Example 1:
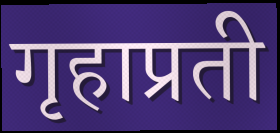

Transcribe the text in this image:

गृहाप्रती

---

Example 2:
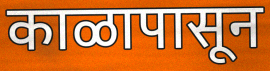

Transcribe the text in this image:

काळापासून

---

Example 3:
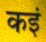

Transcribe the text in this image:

कइं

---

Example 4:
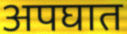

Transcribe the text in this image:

अपघात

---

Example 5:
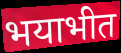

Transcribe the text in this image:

भयाभीत